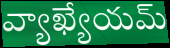
వ్యాఖ్యేయమ్